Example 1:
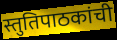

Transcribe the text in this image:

स्तुतिपाठकांची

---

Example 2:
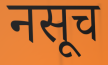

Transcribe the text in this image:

नसूच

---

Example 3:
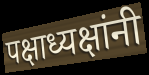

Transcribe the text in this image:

पक्षाध्यक्षांनी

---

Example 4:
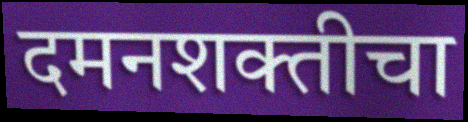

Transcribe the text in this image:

दमनशक्तीचा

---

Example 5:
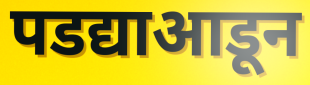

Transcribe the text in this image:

पडद्याआडून